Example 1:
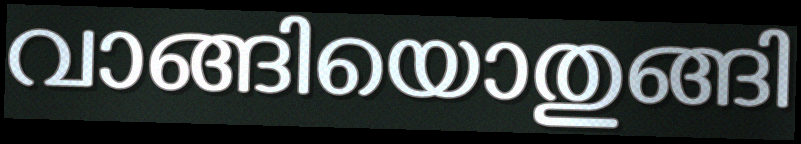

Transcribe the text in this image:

വാങ്ങിയൊതുങ്ങി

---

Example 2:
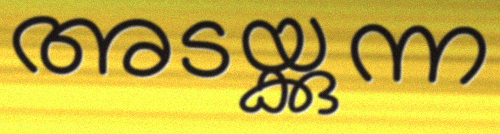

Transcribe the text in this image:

അടയ്ക്കുന്ന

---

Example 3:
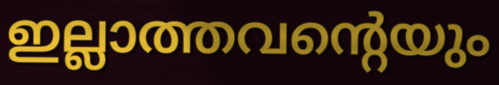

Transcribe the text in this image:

ഇല്ലാത്തവന്റെയും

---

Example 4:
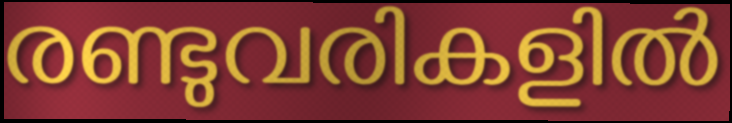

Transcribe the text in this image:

രണ്ടുവരികളിൽ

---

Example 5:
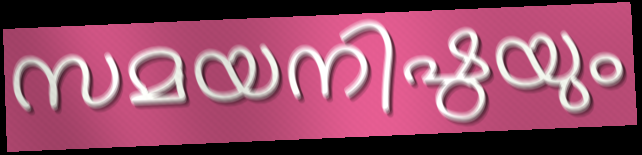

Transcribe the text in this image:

സമയനിഷ്ഠയും